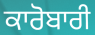
ਕਾਰੋਬਾਰੀ